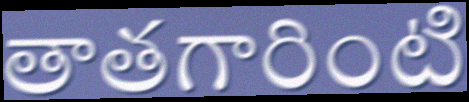
తాతగారింటి